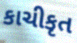
કાચીકૃત